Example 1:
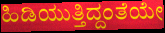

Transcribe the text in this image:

ಹಿಡಿಯುತ್ತಿದ್ದಂತೆಯೇ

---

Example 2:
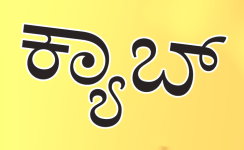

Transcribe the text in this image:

ಕ್ಯಾಬ್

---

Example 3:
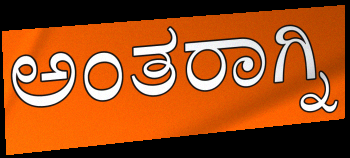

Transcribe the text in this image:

ಅಂತರಾಗ್ನಿ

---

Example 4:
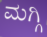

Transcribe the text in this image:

ಮಗ್ಗಿ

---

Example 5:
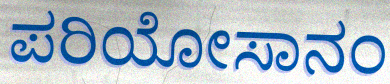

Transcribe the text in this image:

ಪರಿಯೋಸಾನಂ